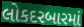
લોકદરબારમાં